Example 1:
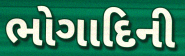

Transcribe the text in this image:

ભોગાદિની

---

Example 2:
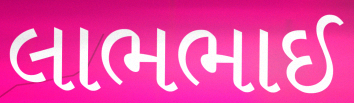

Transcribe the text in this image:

લાભભાઈ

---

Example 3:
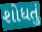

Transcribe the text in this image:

શોધતું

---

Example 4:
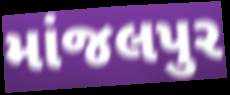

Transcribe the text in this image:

માંજલપુર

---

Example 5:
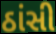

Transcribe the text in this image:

ઠાંસી